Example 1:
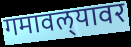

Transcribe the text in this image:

गमावल्यावर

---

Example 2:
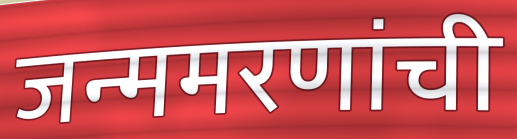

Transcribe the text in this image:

जन्ममरणांची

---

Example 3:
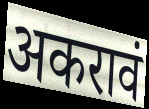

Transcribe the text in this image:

अकरावं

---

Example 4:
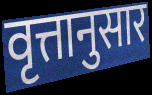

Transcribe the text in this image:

वृत्तानुसार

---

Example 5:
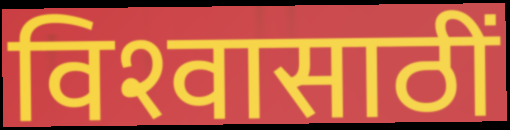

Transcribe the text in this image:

विश्वासाठीं